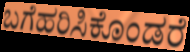
ಬಗೆಹರಿಸಿಕೊಂಡರೆ